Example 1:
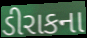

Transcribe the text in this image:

ડીરાકના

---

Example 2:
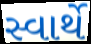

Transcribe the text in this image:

સ્વાર્થે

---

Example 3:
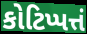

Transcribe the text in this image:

કોટિપ્પત્તં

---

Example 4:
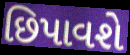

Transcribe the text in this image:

છિપાવશે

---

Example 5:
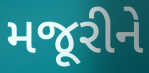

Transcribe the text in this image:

મજૂરીને